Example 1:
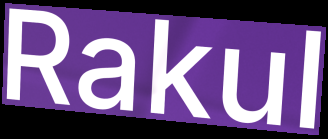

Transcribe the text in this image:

Rakul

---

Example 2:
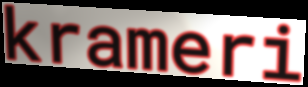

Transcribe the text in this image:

krameri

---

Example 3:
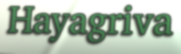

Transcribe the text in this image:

Hayagriva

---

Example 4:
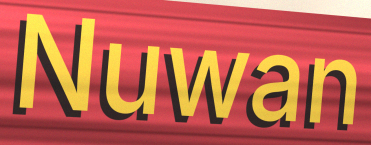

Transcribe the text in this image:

Nuwan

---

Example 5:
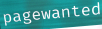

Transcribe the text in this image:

pagewanted